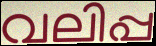
വലിപ്പ